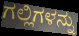
ಗಲ್ಲಿಗಳನ್ನು